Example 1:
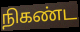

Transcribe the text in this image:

நிகண்ட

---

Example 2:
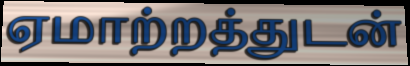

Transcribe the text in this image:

ஏமாற்றத்துடன்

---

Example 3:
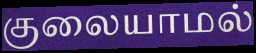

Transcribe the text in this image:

குலையாமல்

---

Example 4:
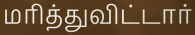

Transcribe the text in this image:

மரித்துவிட்டார்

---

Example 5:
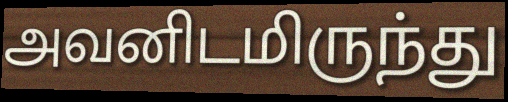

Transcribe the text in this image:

அவனிடமிருந்து